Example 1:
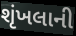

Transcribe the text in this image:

શૃંખલાની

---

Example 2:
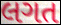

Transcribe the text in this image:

લગત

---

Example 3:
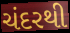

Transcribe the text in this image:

ચંદરથી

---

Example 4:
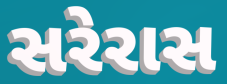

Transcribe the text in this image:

સરેરાસ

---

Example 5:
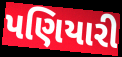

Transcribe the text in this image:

પણિયારી